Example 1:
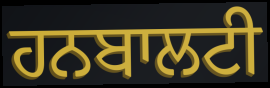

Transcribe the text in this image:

ਹਨਬਾਲਟੀ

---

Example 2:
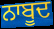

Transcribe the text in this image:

ਨਾਬੂਦ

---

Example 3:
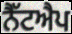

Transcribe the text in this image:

ਨੈੱਟਐਪ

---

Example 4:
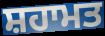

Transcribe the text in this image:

ਸ਼ਹਾਮਤ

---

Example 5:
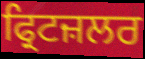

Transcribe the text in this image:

ਫ੍ਰਿਟਜ਼ਲਰ